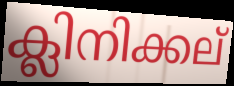
ക്ലിനിക്കല്